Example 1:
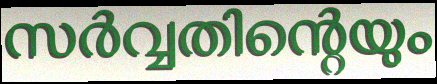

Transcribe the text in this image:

സർവ്വതിന്റെയും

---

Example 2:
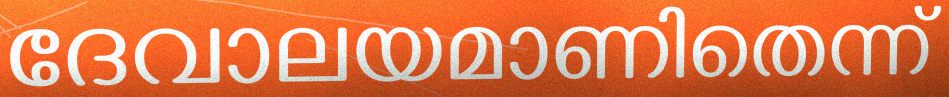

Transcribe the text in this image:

ദേവാലയമാണിതെന്ന്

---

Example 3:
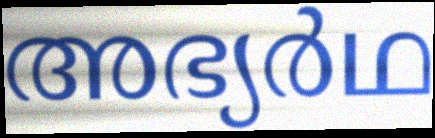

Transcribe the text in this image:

അഭ്യർഥ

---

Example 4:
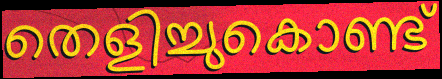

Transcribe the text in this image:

തെളിച്ചുകൊണ്ട്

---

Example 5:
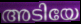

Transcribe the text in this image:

അടിയേ